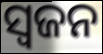
ସ୍ୱଜନ